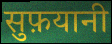
सुफ़यानी